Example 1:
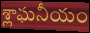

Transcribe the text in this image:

శ్లాఘనీయం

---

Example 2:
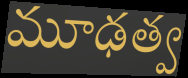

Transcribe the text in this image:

మూఢత్వ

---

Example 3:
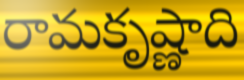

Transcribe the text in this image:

రామకృష్ణాది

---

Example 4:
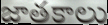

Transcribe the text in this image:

జాతకాలు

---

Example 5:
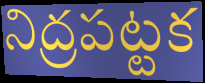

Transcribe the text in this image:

నిద్రపట్టక